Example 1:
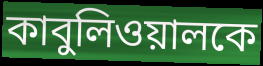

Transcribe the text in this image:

কাবুলিওয়ালকে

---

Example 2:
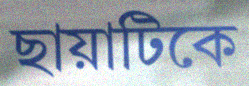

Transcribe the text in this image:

ছায়াটিকে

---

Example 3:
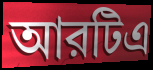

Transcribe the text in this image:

আরটিএ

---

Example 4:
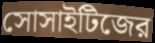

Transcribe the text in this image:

সোসাইটিজের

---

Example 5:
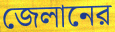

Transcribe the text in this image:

জেলানের